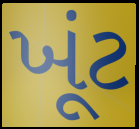
ખૂંટ